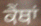
ਕੈਂਥਾਂ